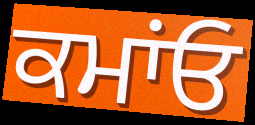
ਕਮਾਂਓ